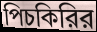
পিচকিরির